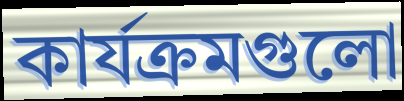
কার্যক্রমগুলো